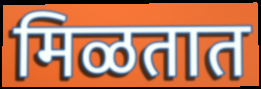
मिळतात